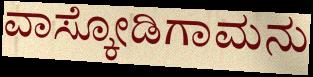
ವಾಸ್ಕೋಡಿಗಾಮನು